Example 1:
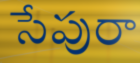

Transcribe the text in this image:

సేపురా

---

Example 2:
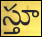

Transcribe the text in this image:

స్తూ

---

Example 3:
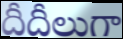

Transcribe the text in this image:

దీదీలుగా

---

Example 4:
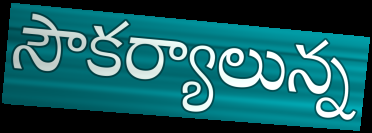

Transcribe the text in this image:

సౌకర్యాలున్న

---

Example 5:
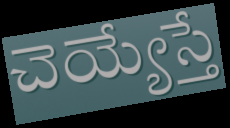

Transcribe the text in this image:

చెయ్యేస్తే